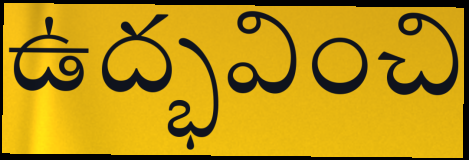
ఉద్భవించి